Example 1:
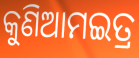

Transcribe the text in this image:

କୁଣିଆମଇତ୍ର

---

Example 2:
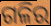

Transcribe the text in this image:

ଗଳିର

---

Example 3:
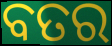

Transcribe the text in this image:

ବତର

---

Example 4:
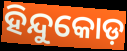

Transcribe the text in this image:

ହିନ୍ଦୁକୋଡ଼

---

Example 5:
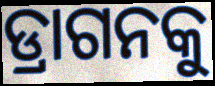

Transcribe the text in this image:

ଡ୍ରାଗନକୁ